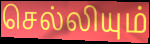
செல்லியும்